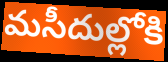
మసీదుల్లోకి